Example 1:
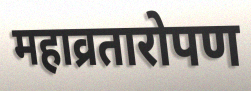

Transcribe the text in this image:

महाव्रतारोपण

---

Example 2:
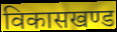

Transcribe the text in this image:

विकासखण्ड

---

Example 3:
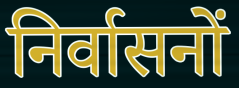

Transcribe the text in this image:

निर्वासनों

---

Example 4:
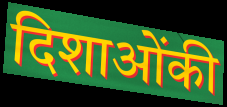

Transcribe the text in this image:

दिशाओंकी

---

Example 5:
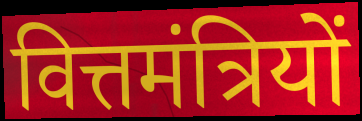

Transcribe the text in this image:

वित्तमंत्रियों